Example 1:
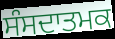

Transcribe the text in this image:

ਸੰਸਦਾਤਮਕ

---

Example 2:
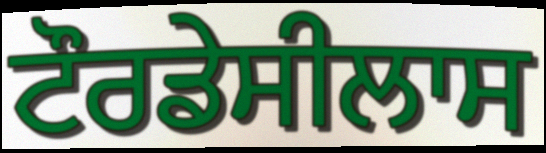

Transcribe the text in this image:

ਟੌਰਡੇਸੀਲਾਸ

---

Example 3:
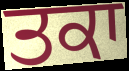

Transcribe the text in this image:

ਤਕਾ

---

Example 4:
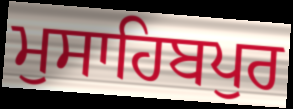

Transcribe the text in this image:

ਮੁਸਾਹਿਬਪੁਰ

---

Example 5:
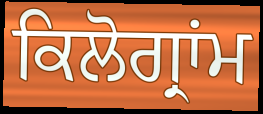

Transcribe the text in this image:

ਕਿਲੋਗ੍ਰਾਂਮ